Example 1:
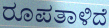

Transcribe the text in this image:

ರೂಪತಾಳಿದೆ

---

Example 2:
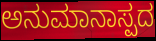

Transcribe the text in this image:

ಅನುಮಾನಾಸ್ಪದ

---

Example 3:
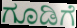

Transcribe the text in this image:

ಗೂಡಿಗೆ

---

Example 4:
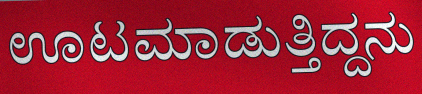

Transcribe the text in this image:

ಊಟಮಾಡುತ್ತಿದ್ದನು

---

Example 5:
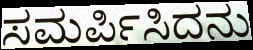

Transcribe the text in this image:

ಸಮರ್ಪಿಸಿದನು